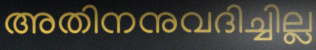
അതിനനുവദിച്ചില്ല